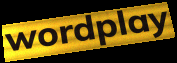
wordplay